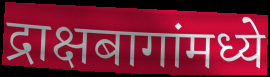
द्राक्षबागांमध्ये